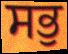
ਸਭੁ